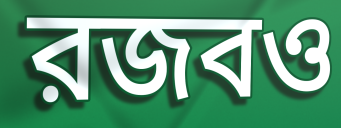
রজবও